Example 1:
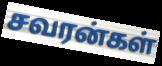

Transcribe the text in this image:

சவரன்கள்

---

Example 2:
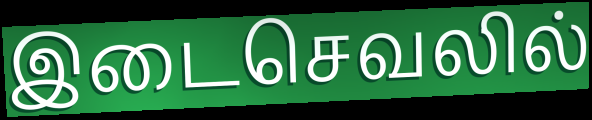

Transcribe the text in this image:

இடைசெவலில்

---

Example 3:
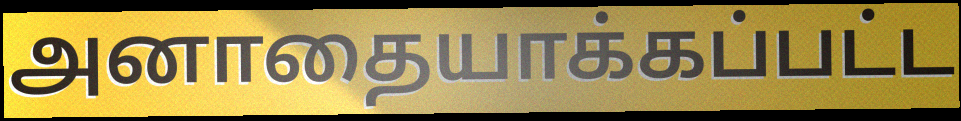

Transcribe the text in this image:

அனாதையாக்கப்பட்ட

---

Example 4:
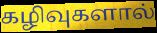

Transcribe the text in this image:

கழிவுகளால்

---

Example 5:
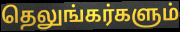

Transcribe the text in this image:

தெலுங்கர்களும்